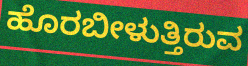
ಹೊರಬೀಳುತ್ತಿರುವ